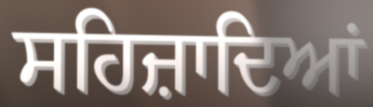
ਸਹਿਜ਼ਾਦਿਆਂ